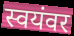
स्वयंवर